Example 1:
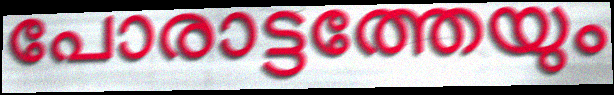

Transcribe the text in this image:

പോരാട്ടത്തേയും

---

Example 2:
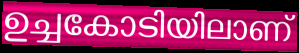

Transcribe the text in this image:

ഉച്ചകോടിയിലാണ്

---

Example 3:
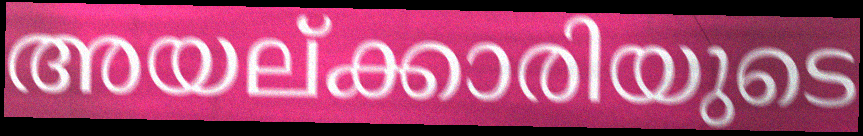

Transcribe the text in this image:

അയല്ക്കാരിയുടെ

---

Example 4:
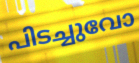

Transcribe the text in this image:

പിടച്ചുവോ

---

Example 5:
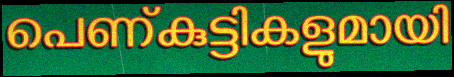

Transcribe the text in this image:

പെണ്കുട്ടികളുമായി